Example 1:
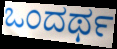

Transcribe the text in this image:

ಒಂದರ್ಥ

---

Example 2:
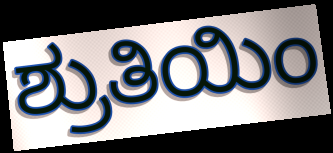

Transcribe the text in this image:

ಶ್ರುತಿಯಿಂ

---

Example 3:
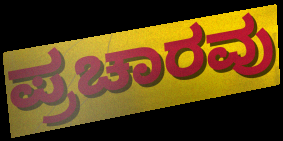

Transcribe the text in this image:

ಪ್ರಚಾರವು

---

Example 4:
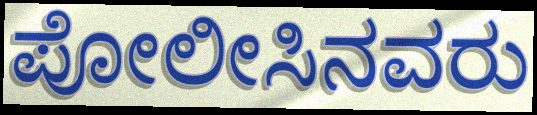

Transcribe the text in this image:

ಪೋಲೀಸಿನವರು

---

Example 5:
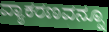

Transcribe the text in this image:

ವ್ಯಾಕರಣವನ್ನೂ